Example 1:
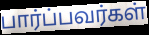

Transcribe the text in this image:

பார்ப்பவர்கள்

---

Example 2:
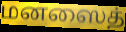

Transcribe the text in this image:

மனஸைத்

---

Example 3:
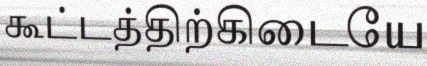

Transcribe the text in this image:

கூட்டத்திற்கிடையே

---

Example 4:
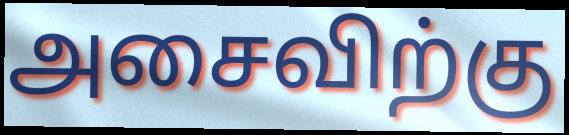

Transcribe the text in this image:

அசைவிற்கு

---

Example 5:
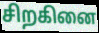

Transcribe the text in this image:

சிறகினை